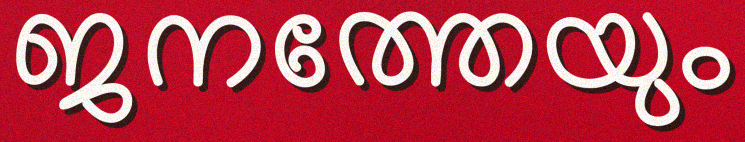
ജനത്തേയും